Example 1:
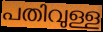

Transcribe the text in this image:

പതിവുള്ള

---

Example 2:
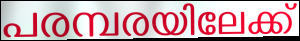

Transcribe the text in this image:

പരമ്പരയിലേക്ക്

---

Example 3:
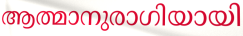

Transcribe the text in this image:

ആത്മാനുരാഗിയായി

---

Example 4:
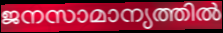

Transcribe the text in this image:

ജനസാമാന്യത്തിൽ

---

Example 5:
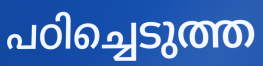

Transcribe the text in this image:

പഠിച്ചെടുത്ത